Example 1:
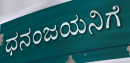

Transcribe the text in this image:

ಧನಂಜಯನಿಗೆ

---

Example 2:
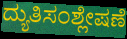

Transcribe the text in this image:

ದ್ಯುತಿಸಂಶ್ಲೇಷಣೆ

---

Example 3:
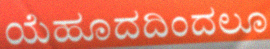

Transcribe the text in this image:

ಯೆಹೂದದಿಂದಲೂ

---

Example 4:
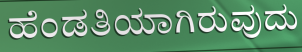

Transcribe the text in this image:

ಹೆಂಡತಿಯಾಗಿರುವುದು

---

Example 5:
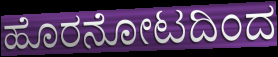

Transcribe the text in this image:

ಹೊರನೋಟದಿಂದ